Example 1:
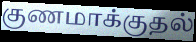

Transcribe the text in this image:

குணமாக்குதல்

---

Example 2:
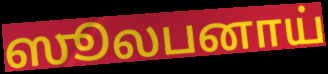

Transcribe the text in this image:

ஸூலபனாய்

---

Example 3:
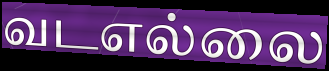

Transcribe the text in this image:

வடஎல்லை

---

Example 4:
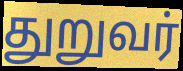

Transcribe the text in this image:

துறுவர்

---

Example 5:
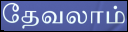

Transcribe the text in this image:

தேவலாம்